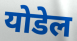
योडेल